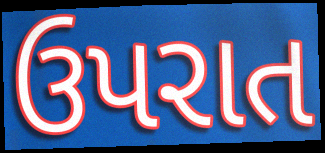
ઉપરાત